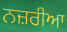
ਨਜ਼ਰੀਆ